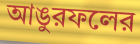
আঙুরফলের